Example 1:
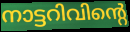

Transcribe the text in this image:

നാട്ടറിവിന്റെ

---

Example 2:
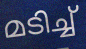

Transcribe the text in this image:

മടിച്ച്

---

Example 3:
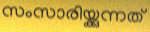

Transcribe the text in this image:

സംസാരിയ്ക്കുന്നത്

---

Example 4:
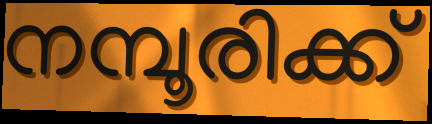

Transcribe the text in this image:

നമ്പൂരിക്ക്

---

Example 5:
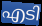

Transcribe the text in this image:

എടി